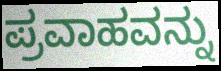
ಪ್ರವಾಹವನ್ನು